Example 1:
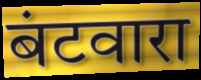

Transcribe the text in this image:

बंटवारा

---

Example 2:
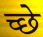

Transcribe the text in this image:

च्छे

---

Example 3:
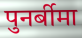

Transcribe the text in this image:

पुनर्बीमा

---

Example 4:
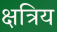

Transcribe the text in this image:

क्षत्रिय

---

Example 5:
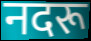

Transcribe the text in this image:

नदरू